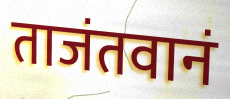
ताजंतवानं